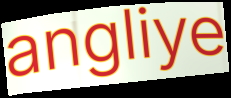
angliye